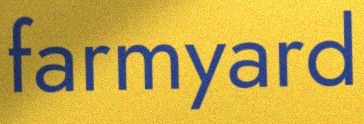
farmyard